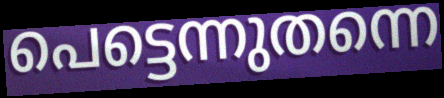
പെട്ടെന്നുതന്നെ